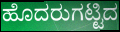
ಹೊದರುಗಟ್ಟಿದ